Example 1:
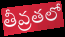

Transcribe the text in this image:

తీవ్రతలో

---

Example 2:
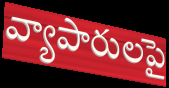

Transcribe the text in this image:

వ్యాపారులపై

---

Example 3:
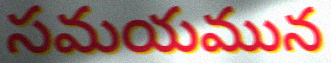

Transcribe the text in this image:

సమయమున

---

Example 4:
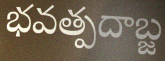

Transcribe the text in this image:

భవత్పదాబ్జ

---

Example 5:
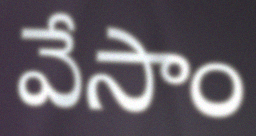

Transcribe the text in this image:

వేసాం